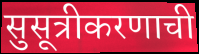
सुसूत्रीकरणाची